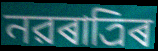
নৱৰাত্ৰিৰ